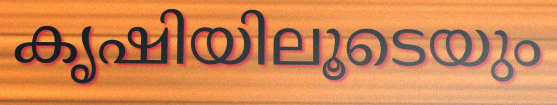
കൃഷിയിലൂടെയും